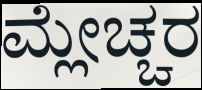
ಮ್ಲೇಚ್ಚರ